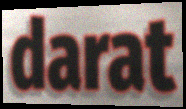
darat